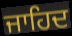
ਜਾਹਿਦ